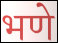
भणे